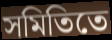
সমিতিতে